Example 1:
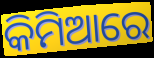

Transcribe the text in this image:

କିମିଆରେ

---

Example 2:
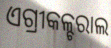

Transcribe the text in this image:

ଏଗ୍ରୀକଳ୍ଚରାଲ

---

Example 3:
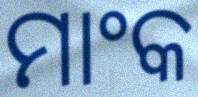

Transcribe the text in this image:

ମାଂକ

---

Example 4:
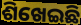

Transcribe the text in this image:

ଶିଖେଇଛି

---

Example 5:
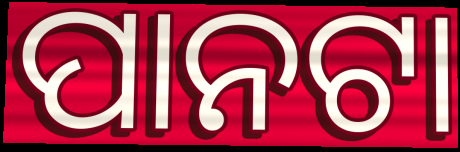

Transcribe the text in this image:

ପାନଟା